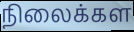
நிலைக்கள